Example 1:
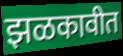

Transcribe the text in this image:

झळकावीत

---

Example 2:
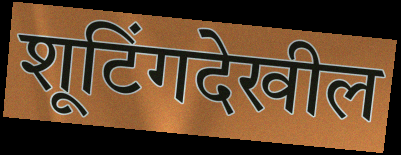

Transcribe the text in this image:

शूटिंगदेखील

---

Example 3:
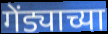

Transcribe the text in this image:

गेंड्याच्या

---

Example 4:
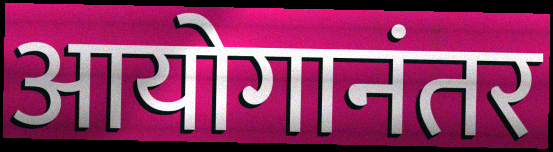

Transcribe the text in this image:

आयोगानंतर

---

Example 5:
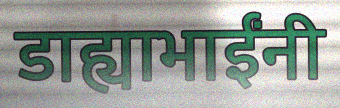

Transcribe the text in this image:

डाह्याभाईंनी